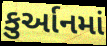
કુર્આનમાં